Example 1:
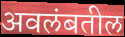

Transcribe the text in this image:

अवलंबतील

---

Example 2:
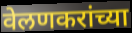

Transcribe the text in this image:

वेलणकरांच्या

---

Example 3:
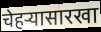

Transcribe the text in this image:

चेहऱ्यासारखा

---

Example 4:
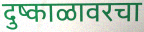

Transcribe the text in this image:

दुष्काळावरचा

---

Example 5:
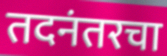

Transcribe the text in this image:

तदनंतरचा